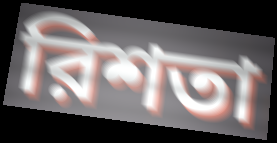
রিশতা